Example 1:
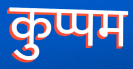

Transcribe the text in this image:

कुप्पम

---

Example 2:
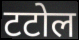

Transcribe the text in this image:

टटोल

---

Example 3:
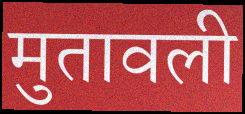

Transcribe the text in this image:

मुतावली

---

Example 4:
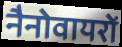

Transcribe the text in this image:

नैनोवायरों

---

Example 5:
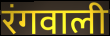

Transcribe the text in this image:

रंगवाली